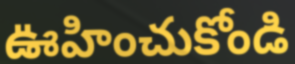
ఊహించుకోండి